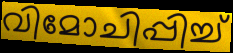
വിമോചിപ്പിച്ച്